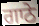
ਗਾਠੇ